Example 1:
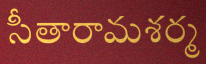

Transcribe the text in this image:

సీతారామశర్మ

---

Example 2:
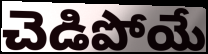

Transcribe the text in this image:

చెడిపోయే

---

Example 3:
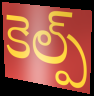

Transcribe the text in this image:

కెల్ప్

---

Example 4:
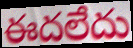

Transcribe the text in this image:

ఈదలేదు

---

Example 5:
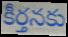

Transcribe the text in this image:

కీర్తనకు